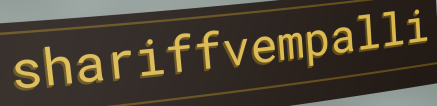
shariffvempalli